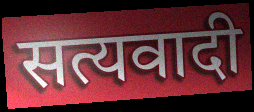
सत्यवादी